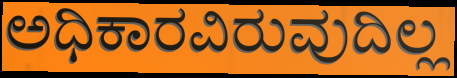
ಅಧಿಕಾರವಿರುವುದಿಲ್ಲ